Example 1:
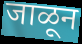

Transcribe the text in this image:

जाळून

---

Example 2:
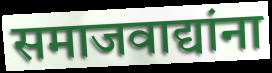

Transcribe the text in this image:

समाजवाद्यांना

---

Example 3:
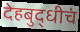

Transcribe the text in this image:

देहबुद्धीचं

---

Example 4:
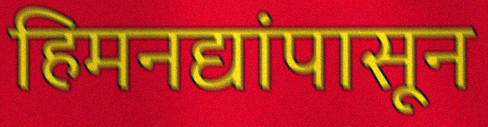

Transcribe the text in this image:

हिमनद्यांपासून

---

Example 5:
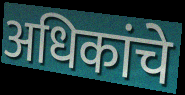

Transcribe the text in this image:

अधिकांचे